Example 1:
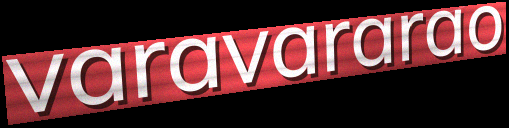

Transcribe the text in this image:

varavararao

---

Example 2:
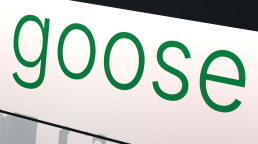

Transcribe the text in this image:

goose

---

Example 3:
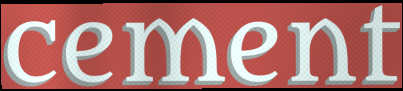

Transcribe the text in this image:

cement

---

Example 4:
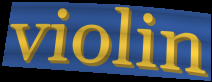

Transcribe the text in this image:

violin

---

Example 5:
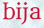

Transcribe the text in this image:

bija